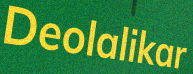
Deolalikar